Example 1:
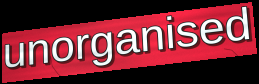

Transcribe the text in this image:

unorganised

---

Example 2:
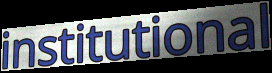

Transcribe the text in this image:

institutional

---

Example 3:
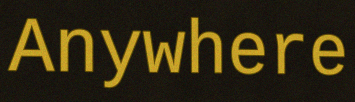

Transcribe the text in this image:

Anywhere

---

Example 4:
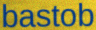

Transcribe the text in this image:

bastob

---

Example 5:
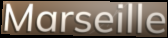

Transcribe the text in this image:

Marseille